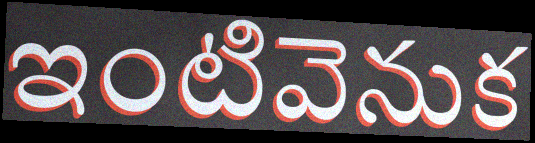
ఇంటివెనుక